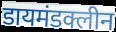
डायमंडक्लीन